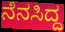
ನೆನಸಿದ್ದ